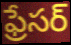
ఫ్రేసర్